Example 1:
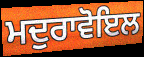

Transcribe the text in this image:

ਮਦੁਰਾਵੋਇਲ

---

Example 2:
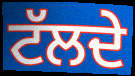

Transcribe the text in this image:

ਟੱਲਦੇ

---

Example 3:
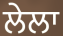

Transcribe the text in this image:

ਲੇਲਾ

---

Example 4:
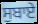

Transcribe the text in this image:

ਸੁਬਾਏ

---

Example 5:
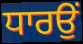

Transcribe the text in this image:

ਧਾਰਉਂ